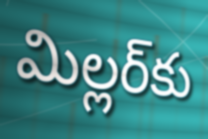
మిల్లర్‌కు